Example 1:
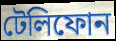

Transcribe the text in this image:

টেলিফোন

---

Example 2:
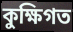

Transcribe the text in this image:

কুক্ষিগত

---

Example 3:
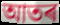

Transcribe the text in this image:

আতৰ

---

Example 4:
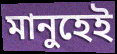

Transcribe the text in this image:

মানুহেই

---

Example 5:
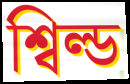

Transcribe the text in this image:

শ্বিল্ড